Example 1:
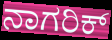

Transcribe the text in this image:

ನಾಗರಿಕ್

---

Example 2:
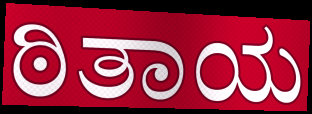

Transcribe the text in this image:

ಠಿತಾಯ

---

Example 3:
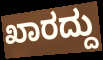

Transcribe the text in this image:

ಖಾರದ್ದು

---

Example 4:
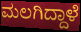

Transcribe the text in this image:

ಮಲಗಿದ್ದಾಳೆ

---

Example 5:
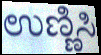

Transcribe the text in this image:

ಉಣ್ಣಿಸಿ